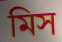
মিস